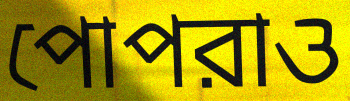
পোপরাও